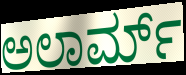
ಅಲಾರ್ಮ್